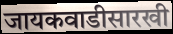
जायकवाडीसारखी